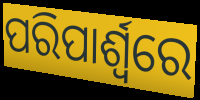
ପରିପାର୍ଶ୍ୱରେ